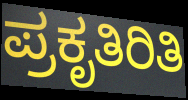
ಪ್ರಕೃತಿರಿತಿ